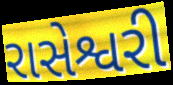
રાસેશ્વરી